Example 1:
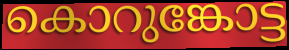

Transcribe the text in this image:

കൊറുങ്കോട്ട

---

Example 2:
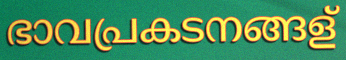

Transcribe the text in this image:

ഭാവപ്രകടനങ്ങള്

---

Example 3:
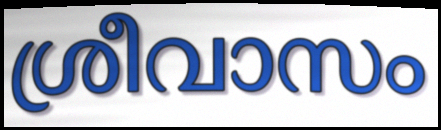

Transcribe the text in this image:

ശ്രീവാസം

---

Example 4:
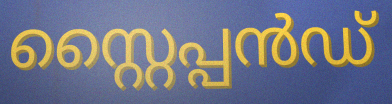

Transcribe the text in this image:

സ്റ്റൈപ്പൻഡ്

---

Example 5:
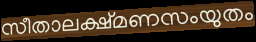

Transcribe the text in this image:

സീതാലക്ഷ്മണസംയുതം